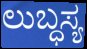
ಲುಬ್ಧಸ್ಯ